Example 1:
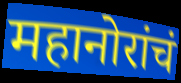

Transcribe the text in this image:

महानोरांचं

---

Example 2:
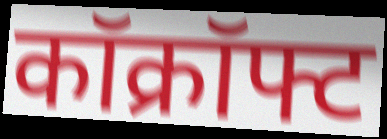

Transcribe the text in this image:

कॉक्रॉफ्ट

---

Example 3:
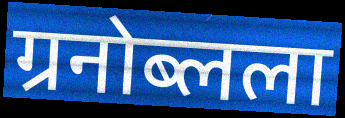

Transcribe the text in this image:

ग्रनोब्लला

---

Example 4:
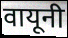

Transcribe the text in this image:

वायूनी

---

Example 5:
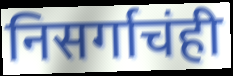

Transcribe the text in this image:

निसर्गाचंही